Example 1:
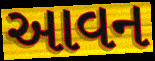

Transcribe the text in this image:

આવન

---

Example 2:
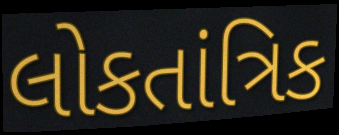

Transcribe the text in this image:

લોકતાંત્રિક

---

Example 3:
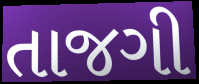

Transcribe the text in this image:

તાજગી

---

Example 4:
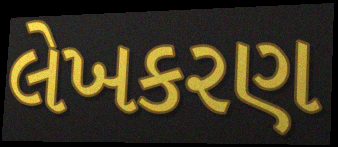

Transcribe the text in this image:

લેખકરણ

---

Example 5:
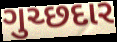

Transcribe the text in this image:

ગુચ્છદાર